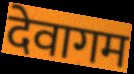
देवागम